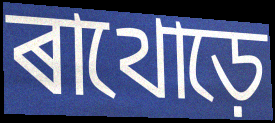
ৰাথোড়ে